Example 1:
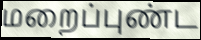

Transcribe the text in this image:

மறைப்புண்ட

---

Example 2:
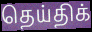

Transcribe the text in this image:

தெய்திக்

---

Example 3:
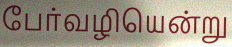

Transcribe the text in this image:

பேர்வழியென்று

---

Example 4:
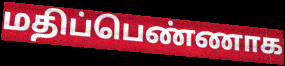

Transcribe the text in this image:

மதிப்பெண்ணாக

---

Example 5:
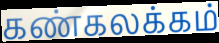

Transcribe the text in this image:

கண்கலக்கம்